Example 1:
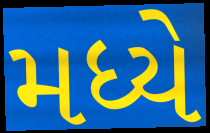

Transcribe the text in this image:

મધ્યે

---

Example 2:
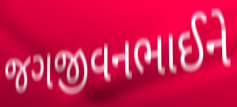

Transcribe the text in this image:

જગજીવનભાઈને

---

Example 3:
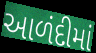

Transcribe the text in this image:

આળંદીમાં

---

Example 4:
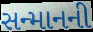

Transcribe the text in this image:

સન્માનની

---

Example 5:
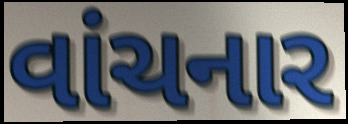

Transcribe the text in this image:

વાંચનાર